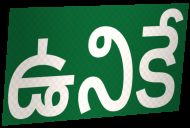
ఉనికే